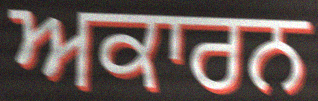
ਅਕਾਰਨ